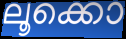
ലൂക്കൊ